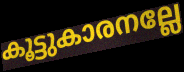
കൂട്ടുകാരനല്ലേ